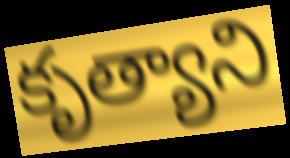
కృత్యాని